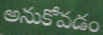
అనుకోవడం